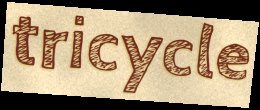
tricycle